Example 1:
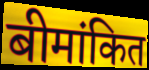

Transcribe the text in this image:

बीमांकित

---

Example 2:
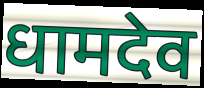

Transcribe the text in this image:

धामदेव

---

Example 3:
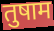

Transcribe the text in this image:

तुषाम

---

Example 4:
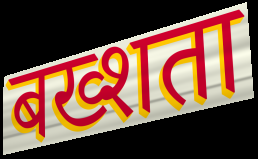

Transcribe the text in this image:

बख्शता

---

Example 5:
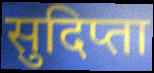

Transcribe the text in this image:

सुदिप्ता